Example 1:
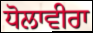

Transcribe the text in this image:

ਧੋਲਾਵੀਰਾ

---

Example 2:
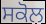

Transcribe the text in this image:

ਸਕੋਲ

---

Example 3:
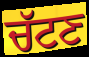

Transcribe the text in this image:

ਚੱਟਣ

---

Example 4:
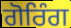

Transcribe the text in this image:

ਗੋਰਿੰਗ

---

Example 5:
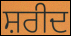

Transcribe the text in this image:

ਸ਼ਰੀਦ